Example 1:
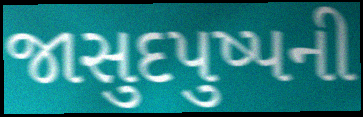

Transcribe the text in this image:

જાસુદપુષ્પની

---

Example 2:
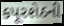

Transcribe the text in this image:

કપૂરશેઠની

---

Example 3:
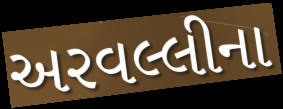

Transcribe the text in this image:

અરવલ્લીના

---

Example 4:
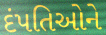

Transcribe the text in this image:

દંપતિઓને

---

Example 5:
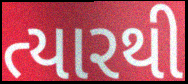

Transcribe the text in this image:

ત્યારથી